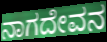
ನಾಗದೇವನ